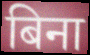
बिना